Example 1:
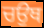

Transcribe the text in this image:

ਚਉਥ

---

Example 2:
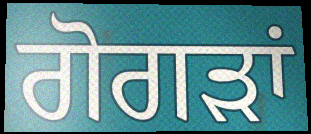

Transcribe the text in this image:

ਗੋਗੜਾਂ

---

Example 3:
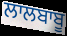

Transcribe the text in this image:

ਲਾਲਬਾਬੂ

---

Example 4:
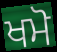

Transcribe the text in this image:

ਖਮੋ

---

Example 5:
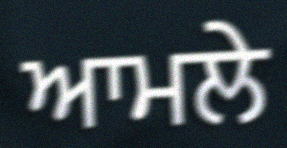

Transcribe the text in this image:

ਆਮਲੇ